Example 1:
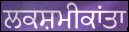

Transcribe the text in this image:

ਲਕਸ਼ਮੀਕਾਂਤਾ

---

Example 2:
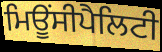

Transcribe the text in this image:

ਮਿਊਂਸੀਪੈਲਿਟੀ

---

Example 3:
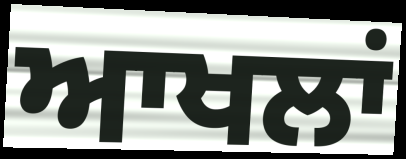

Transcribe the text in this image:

ਆਖਲਾਂ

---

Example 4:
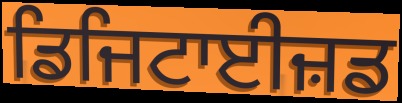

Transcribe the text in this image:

ਡਿਜਿਟਾਈਜ਼ਡ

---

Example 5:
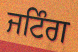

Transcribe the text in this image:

ਜਟਿੰਗ